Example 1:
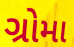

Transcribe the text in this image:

ગ્રોમા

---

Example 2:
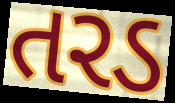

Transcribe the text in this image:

તરડ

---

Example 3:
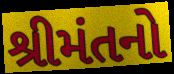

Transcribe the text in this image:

શ્રીમંતનો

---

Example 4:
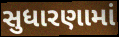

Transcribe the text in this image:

સુધારણામાં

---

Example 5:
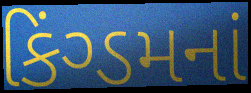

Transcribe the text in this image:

કિંગ્ડમનાં